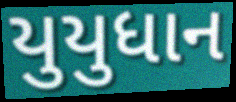
યુયુધાન